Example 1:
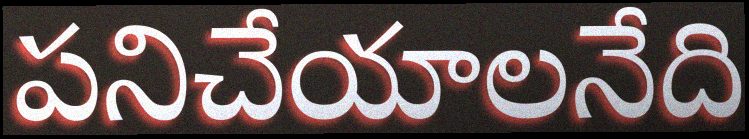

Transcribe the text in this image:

పనిచేయాలనేది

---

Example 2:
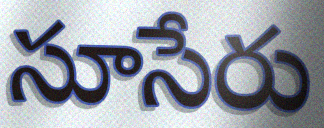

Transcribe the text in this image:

సూసేరు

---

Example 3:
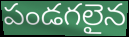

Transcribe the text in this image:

పండగలైన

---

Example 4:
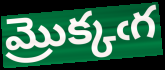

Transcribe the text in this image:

మ్రొక్కఁగ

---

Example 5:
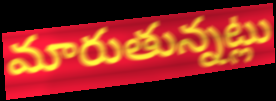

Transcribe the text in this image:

మారుతున్నట్లు